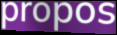
propos